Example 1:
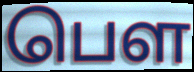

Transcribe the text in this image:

பெள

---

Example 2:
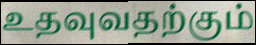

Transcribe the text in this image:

உதவுவதற்கும்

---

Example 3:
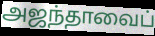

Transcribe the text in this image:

அஜந்தாவைப்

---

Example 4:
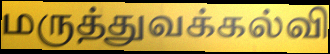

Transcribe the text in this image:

மருத்துவக்கல்வி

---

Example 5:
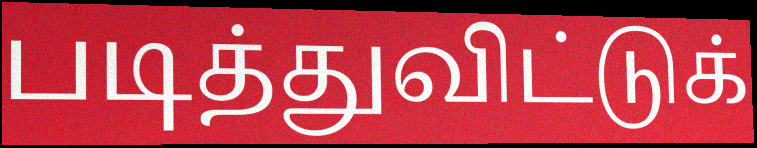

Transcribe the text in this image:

படித்துவிட்டுக்